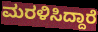
ಮರಳಿಸಿದ್ದಾರೆ